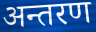
अन्तरण